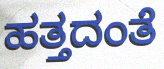
ಹತ್ತದಂತೆ